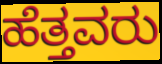
ಹೆತ್ತವರು